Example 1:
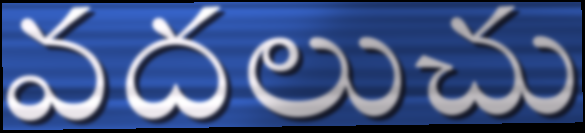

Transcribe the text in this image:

వదలుచు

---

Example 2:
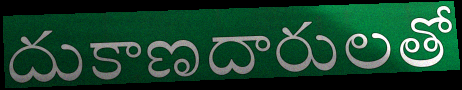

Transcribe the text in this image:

దుకాణదారులతో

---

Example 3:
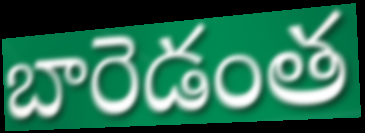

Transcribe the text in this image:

బారెడంత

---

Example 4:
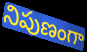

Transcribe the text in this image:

నిపుణంగా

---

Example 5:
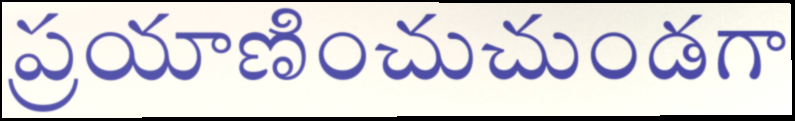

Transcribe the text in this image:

ప్రయాణించుచుండగా